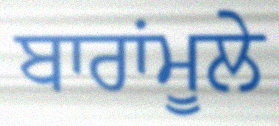
ਬਾਰਾਂਮੂਲੇ